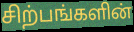
சிற்பங்களின்